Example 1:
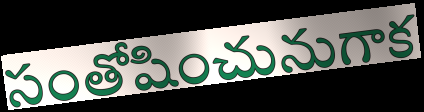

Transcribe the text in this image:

సంతోషించునుగాక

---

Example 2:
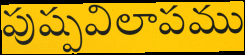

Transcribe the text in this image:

పుష్పవిలాపము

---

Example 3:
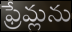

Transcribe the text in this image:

ఫ్రేమ్లను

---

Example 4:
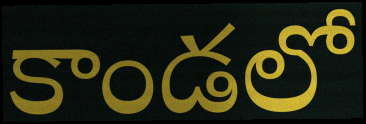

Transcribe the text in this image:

కాండలో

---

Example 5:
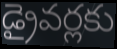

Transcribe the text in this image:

డ్రైవర్లకు